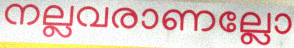
നല്ലവരാണല്ലോ